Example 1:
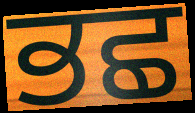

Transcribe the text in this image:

ਭਛ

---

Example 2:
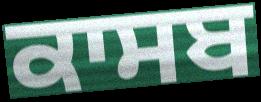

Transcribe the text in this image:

ਕਾਸਬ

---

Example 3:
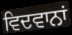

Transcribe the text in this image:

ਵਿਦਵਾਨਾਂ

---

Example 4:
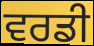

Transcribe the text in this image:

ਵਰਡੀ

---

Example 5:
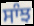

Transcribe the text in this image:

ਸਾੰਝ